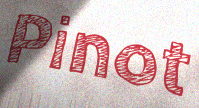
Pinot